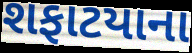
શફાટયાના